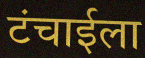
टंचाईला